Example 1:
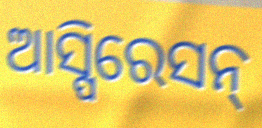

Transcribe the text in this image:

ଆସ୍ପିରେସନ୍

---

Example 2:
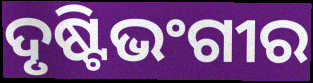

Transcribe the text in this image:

ଦୃଷ୍ଟିଭଂଗୀର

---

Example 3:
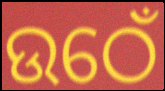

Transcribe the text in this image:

ଉଠେଁ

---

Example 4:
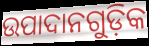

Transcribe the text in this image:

ଉପାଦାନଗୁଡ଼ିକ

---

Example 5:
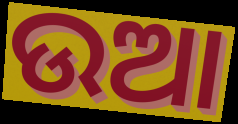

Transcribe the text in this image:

ଉଆ